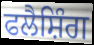
ਫਲੈਸ਼ਿੰਗ